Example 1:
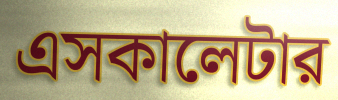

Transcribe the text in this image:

এসকালেটার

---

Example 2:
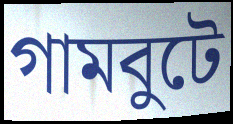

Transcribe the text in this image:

গামবুটে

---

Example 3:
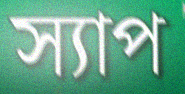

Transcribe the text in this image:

স্যাপ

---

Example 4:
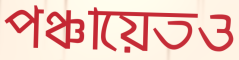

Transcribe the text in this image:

পঞ্চায়েতও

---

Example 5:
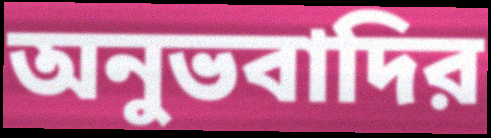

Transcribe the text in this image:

অনুভবাদির